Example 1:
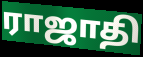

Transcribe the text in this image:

ராஜாதி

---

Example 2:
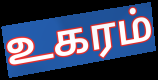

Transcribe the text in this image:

உகரம்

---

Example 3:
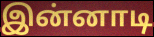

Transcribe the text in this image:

இன்னாடி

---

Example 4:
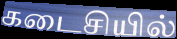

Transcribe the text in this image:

கடைசியில்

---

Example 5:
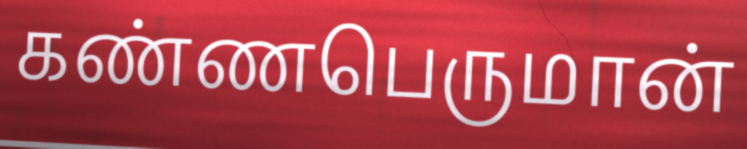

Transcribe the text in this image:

கண்ணபெருமான்